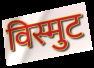
विस्मुट